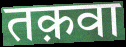
तक़वा